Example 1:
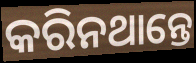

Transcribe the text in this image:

କରିନଥାନ୍ତେ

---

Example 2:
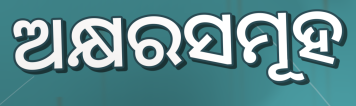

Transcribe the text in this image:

ଅକ୍ଷରସମୂହ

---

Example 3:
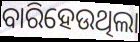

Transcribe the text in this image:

ବାରିହେଉଥିଲା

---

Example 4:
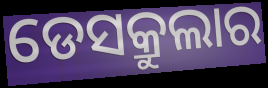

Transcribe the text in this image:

ଡେସକ୍ରୁଲାର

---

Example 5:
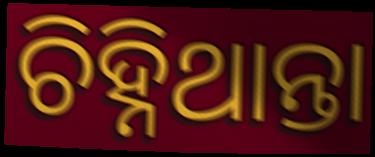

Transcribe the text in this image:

ଚିହ୍ନିଥାନ୍ତା